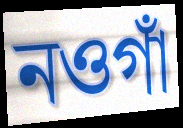
নওগাঁ